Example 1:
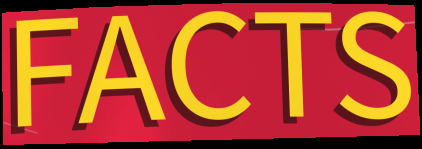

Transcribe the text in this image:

FACTS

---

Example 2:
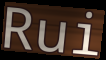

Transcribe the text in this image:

Rui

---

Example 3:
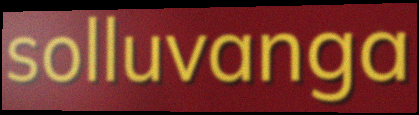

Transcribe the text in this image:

solluvanga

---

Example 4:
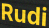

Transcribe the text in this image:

Rudi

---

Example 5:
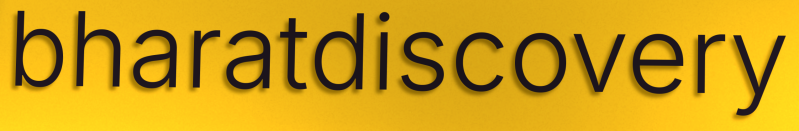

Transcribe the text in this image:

bharatdiscovery